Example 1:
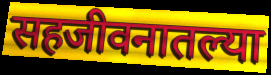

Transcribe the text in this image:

सहजीवनातल्या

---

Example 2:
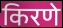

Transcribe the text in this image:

किरणे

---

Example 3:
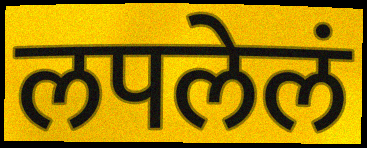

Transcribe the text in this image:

लपलेलं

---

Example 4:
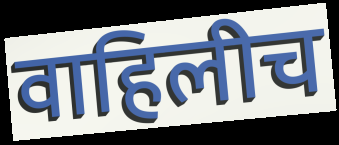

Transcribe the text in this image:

वाहिलीच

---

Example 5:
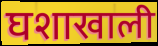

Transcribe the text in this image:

घशाखाली